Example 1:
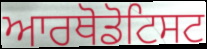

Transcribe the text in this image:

ਆਰਥੋਡੋਟਿਸਟ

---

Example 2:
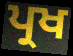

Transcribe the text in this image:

ਪ੍ਰਖ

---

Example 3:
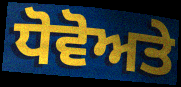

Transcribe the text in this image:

ਧੋਵੋਅਤੇ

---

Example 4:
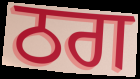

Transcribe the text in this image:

ਠਗ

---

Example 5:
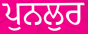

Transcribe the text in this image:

ਪੁਨਲੁਰ